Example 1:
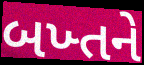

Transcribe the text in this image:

બખ્તને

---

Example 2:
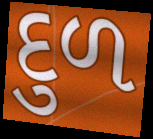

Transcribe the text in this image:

દુળ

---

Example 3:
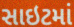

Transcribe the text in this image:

સાઇટમાં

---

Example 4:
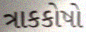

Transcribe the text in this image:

ત્રાકકોષો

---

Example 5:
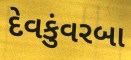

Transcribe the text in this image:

દેવકુંવરબા